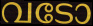
വടോ